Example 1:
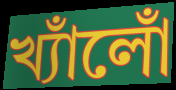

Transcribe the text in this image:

খ্যাঁলোঁ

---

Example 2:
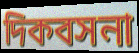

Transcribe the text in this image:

দিকবসনা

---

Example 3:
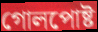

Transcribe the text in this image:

গোলপোষ্ট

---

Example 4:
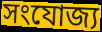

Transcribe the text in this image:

সংযোজ্য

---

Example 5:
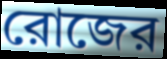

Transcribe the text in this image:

রোজের